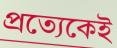
প্রত্যেকেই